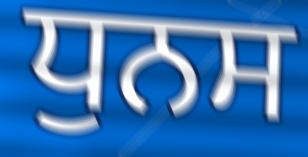
ਧੁਨਸ